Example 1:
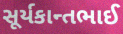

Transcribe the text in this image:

સૂર્યકાન્તભાઈ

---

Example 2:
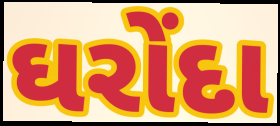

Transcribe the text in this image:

ઘરોંદા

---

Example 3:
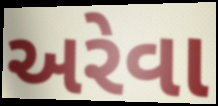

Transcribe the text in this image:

અરેવા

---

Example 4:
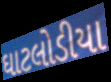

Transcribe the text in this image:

ઘાટલોડીયા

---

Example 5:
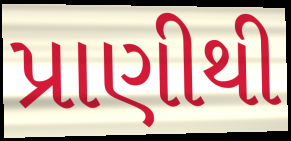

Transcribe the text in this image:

પ્રાણીથી